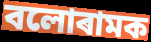
বলোৰামক